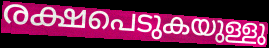
രക്ഷപെടുകയുള്ളു